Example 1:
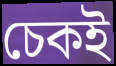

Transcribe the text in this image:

চেকই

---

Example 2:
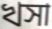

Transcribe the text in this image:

খসা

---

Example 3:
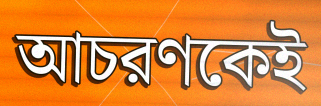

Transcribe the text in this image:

আচরণকেই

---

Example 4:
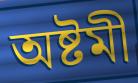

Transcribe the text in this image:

অষ্টমী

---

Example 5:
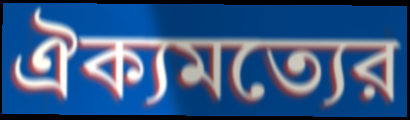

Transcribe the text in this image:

ঐক্যমত্যের